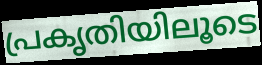
പ്രകൃതിയിലൂടെ